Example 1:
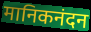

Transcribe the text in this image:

मानिकनंदन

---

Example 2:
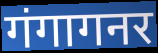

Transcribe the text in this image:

गंगागनर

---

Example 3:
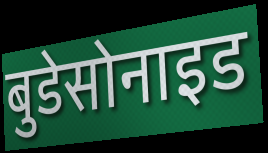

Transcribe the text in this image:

बुडेसोनाइड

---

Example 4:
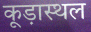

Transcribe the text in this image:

कूड़ास्थल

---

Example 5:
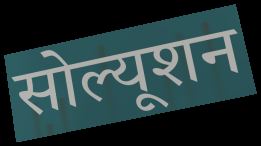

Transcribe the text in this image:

सोल्यूशन